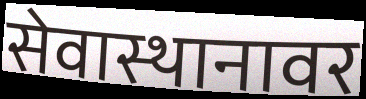
सेवास्थानावर